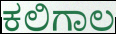
ಕಲಿಗಾಲ